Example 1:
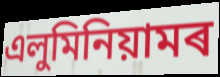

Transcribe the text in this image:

এলুমিনিয়ামৰ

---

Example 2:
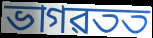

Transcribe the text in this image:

ভাগৱতত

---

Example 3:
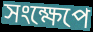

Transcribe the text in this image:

সংক্ষেপে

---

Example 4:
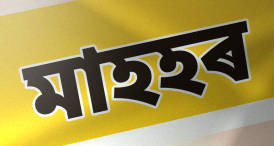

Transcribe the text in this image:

মাহহৰ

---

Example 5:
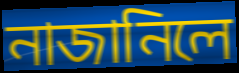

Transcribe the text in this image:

নাজানিলে